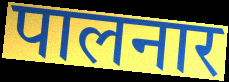
पालनार